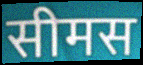
सीमस